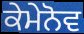
ਕੇਮੇਨੋਵ